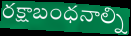
రక్షాబంధనాల్ని